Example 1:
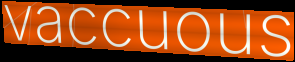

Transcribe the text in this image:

vaccuous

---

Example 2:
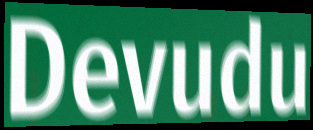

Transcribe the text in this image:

Devudu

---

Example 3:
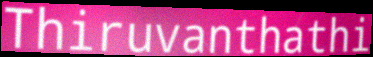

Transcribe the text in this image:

Thiruvanthathi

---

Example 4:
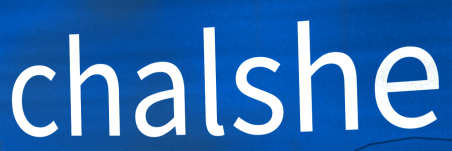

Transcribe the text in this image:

chalshe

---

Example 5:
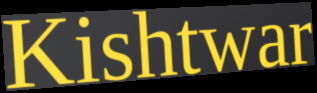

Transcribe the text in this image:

Kishtwar